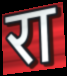
रा